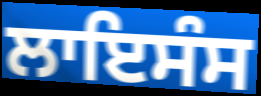
ਲਾਇਸੰਸ